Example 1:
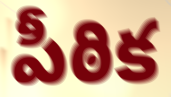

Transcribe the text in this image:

పీఠిక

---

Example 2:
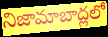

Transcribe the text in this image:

నిజామాబాద్లలో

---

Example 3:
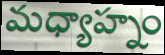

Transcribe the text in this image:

మధ్యాహ్నం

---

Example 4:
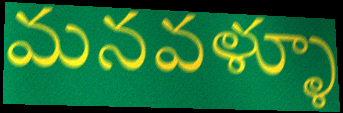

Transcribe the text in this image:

మనవళ్ళూ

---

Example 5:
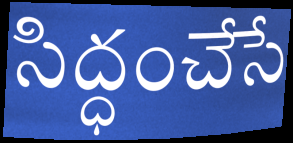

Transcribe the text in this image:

సిద్ధంచేసే